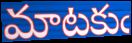
మాటకుఁ